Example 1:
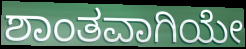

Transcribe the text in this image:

ಶಾಂತವಾಗಿಯೇ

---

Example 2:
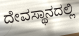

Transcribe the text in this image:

ದೇವಸ್ಥಾನದಲ್ಲಿ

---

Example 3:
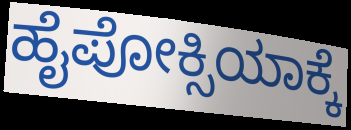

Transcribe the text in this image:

ಹೈಪೋಕ್ಸಿಯಾಕ್ಕೆ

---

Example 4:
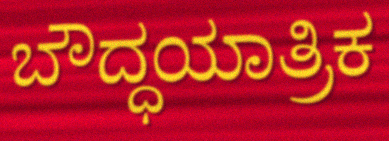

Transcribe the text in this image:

ಬೌದ್ಧಯಾತ್ರಿಕ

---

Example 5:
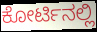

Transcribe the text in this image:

ಕೋರ್ಟಿನಲ್ಲಿ